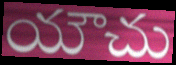
యౌచు